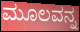
ಮೂಲವನ್ನ